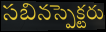
సబినస్పెక్టరు